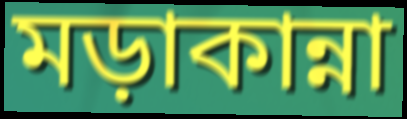
মড়াকান্না